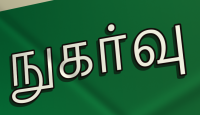
நுகர்வு